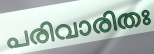
പരിവാരിതഃ